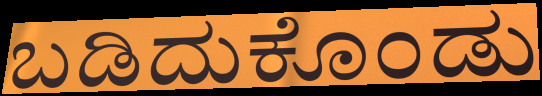
ಬಡಿದುಕೊಂಡು